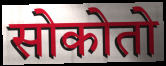
सोकोतो